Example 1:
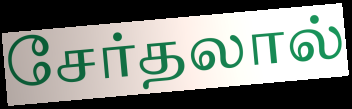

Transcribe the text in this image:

சேர்தலால்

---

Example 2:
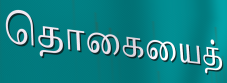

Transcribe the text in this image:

தொகையைத்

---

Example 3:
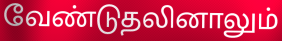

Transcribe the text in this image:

வேண்டுதலினாலும்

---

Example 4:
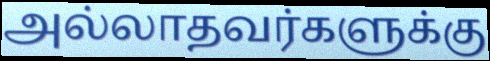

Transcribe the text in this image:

அல்லாதவர்களுக்கு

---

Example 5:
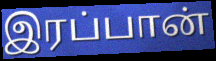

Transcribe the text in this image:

இரப்பான்